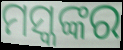
ମସ୍କଙ୍କର